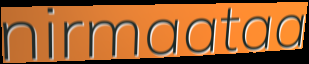
nirmaataa